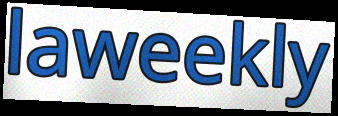
laweekly